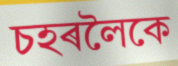
চহৰলৈকে